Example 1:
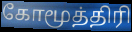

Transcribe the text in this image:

கோமூத்திரி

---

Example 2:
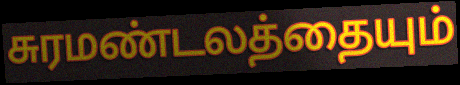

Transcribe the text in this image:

சுரமண்டலத்தையும்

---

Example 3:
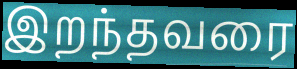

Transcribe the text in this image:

இறந்தவரை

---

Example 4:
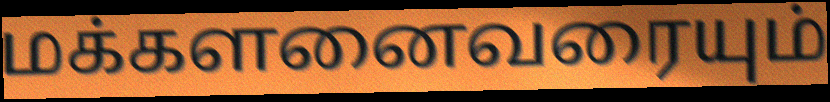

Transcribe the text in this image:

மக்களனைவரையும்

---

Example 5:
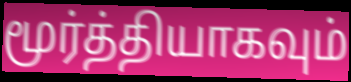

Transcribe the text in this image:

மூர்த்தியாகவும்